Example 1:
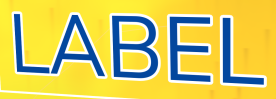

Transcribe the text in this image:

LABEL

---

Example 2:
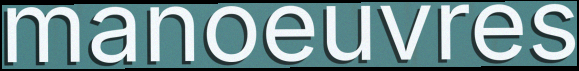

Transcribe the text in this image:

manoeuvres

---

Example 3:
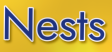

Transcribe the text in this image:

Nests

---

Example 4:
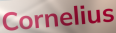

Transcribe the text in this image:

Cornelius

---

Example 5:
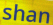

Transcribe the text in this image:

shan